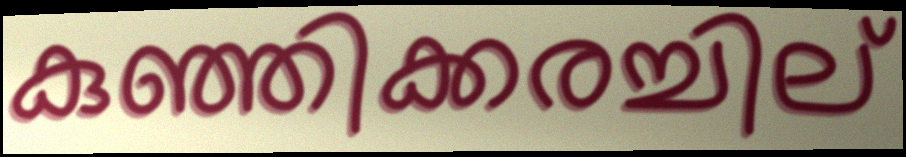
കുഞ്ഞിക്കരച്ചില്